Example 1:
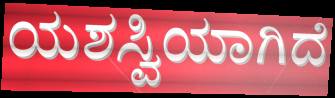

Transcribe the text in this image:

ಯಶಸ್ವಿಯಾಗಿದೆ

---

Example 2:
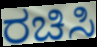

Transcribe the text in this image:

ರಚಿಸಿ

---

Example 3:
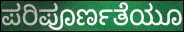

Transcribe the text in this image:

ಪರಿಪೂರ್ಣತೆಯೂ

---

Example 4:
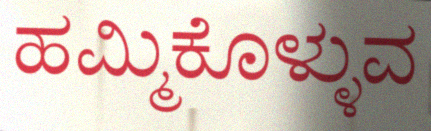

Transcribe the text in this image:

ಹಮ್ಮಿಕೊಳ್ಳುವ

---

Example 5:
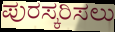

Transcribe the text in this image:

ಪುರಸ್ಕರಿಸಲು